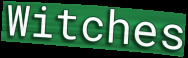
Witches